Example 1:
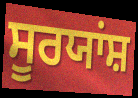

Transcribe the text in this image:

ਸੂਰਯਾਂਸ਼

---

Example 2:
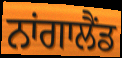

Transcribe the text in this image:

ਨਾਂਗਾਲੈਂਡ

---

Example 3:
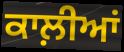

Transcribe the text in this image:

ਕਾਲ਼ੀਆਂ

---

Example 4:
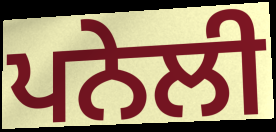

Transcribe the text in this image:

ਪਨੇਲੀ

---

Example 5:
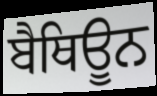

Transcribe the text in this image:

ਬੈਥਿਊਨ